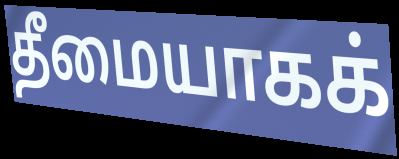
தீமையாகக்